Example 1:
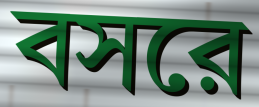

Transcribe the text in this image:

বসরে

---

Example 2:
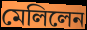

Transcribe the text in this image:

মেলিলেন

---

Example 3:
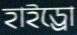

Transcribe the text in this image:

হাইড্রো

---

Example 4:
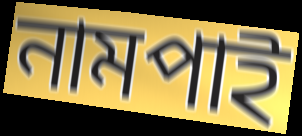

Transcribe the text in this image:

নামপাই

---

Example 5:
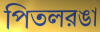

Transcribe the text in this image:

পিতলরঙা